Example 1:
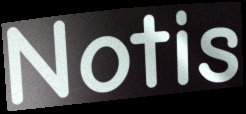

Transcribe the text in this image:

Notis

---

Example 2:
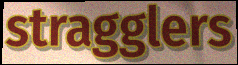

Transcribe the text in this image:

stragglers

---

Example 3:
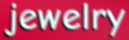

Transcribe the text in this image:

jewelry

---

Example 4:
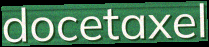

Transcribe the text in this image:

docetaxel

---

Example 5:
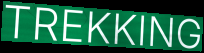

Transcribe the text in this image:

TREKKING